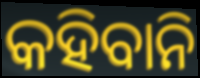
କହିବାନି